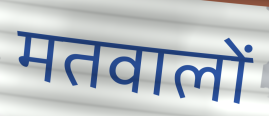
मतवालों